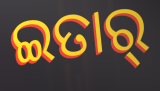
ଇତାର୍